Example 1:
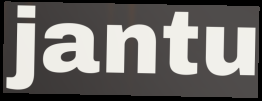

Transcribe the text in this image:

jantu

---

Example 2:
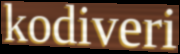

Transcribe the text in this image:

kodiveri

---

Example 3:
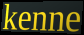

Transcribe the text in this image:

kenne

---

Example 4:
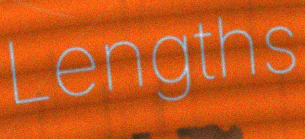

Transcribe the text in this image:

Lengths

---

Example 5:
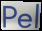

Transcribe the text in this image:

Pel